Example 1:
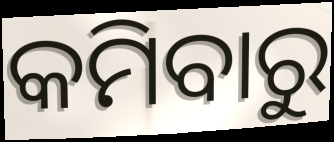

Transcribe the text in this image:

କମିବାରୁ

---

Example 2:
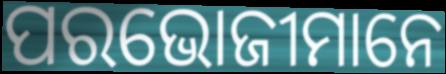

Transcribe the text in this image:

ପରଭୋଜୀମାନେ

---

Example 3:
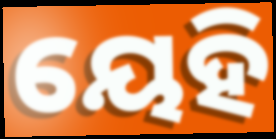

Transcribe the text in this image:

ୟେହି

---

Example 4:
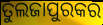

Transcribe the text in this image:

ତୁଲଜାପୁରକର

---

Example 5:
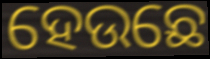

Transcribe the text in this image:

ହେଉଛେ